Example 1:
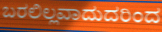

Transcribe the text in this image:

ಬರಲಿಲ್ಲವಾದುದರಿಂದ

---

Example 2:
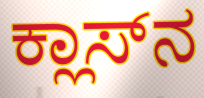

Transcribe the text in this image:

ಕ್ಲಾಸ್‌ನ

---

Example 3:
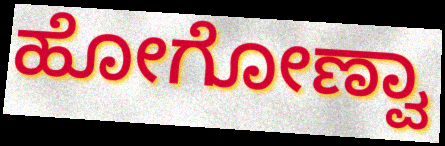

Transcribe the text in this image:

ಹೋಗೋಣ್ವಾ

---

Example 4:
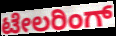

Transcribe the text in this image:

ಟೇಲರಿಂಗ್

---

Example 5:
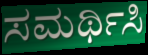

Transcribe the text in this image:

ಸಮರ್ಥಿಸಿ